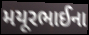
મયૂરભાઈના